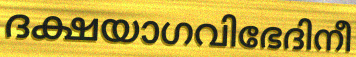
ദക്ഷയാഗവിഭേദിനീ